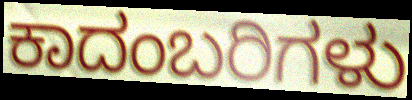
ಕಾದಂಬರಿಗಳು